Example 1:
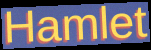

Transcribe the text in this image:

Hamlet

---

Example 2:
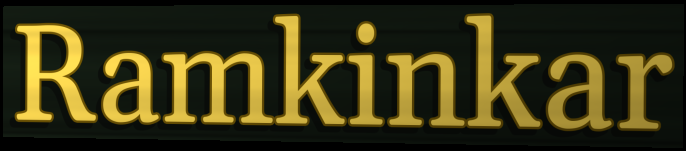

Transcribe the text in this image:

Ramkinkar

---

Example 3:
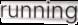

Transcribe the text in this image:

running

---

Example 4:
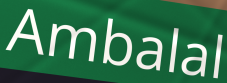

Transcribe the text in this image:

Ambalal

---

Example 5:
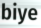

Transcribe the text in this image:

biye